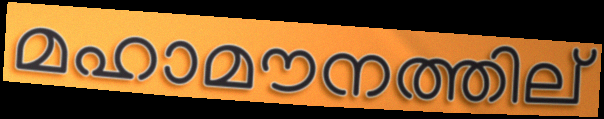
മഹാമൗനത്തില്